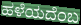
ಹಳೆಯದೆಂಬ